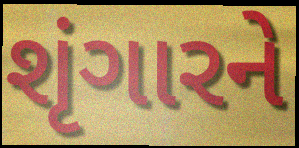
શૃંગારને